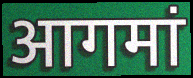
आगमां